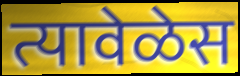
त्यावेळेस